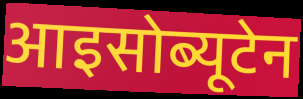
आइसोब्यूटेन